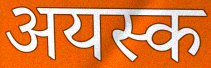
अयस्क